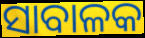
ସାବାଳକ